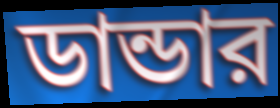
ডান্ডার